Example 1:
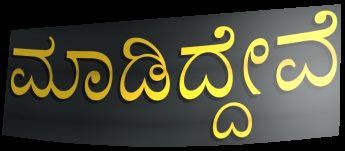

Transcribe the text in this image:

ಮಾಡಿದ್ದೇವೆ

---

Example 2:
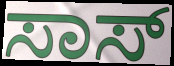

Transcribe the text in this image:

ಸಾಸ್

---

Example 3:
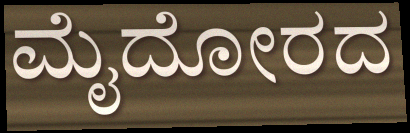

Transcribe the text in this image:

ಮೈದೋರದ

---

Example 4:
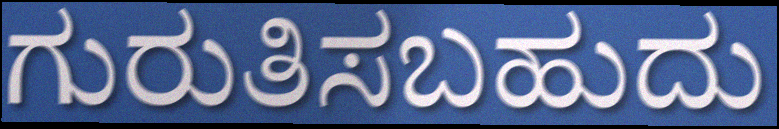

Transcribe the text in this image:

ಗುರುತಿಸಬಹುದು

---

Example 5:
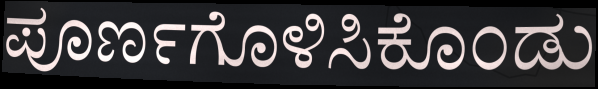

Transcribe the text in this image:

ಪೂರ್ಣಗೊಳಿಸಿಕೊಂಡು